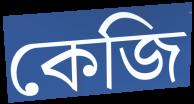
কেজি